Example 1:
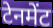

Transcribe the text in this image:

टेनमेंट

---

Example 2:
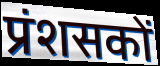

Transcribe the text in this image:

प्रंशसकों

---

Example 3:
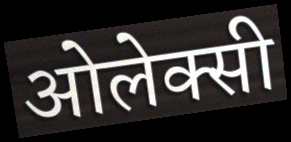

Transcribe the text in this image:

ओलेक्सी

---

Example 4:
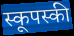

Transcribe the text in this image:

स्कूपस्की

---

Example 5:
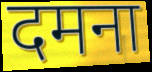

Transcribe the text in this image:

दमना